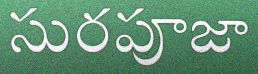
సురపూజా